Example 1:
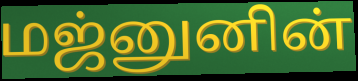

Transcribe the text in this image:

மஜ்னுனின்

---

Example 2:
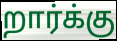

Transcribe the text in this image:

றார்க்கு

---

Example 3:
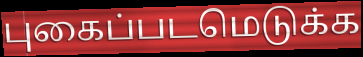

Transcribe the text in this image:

புகைப்படமெடுக்க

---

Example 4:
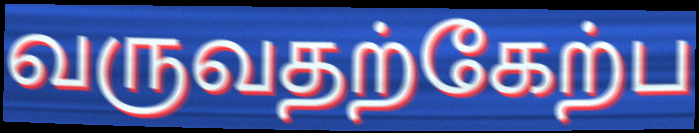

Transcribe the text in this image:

வருவதற்கேற்ப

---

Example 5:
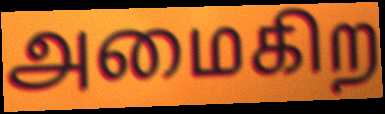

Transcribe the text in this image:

அமைகிற